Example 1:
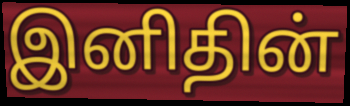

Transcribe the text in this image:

இனிதின்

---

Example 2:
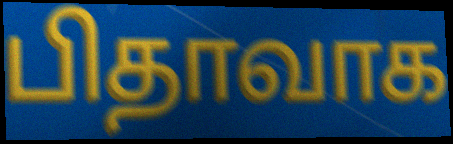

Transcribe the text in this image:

பிதாவாக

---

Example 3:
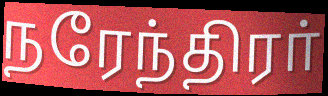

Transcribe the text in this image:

நரேந்திரர்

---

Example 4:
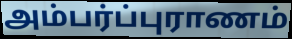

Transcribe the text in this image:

அம்பர்ப்புராணம்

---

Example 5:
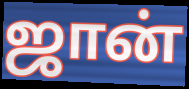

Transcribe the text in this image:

ஜான்